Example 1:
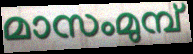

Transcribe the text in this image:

മാസംമുമ്പ്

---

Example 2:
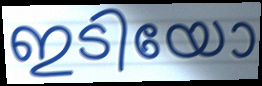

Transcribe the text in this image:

ഇടിയോ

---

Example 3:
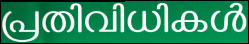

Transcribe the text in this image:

പ്രതിവിധികൾ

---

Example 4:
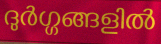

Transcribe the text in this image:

ദുർഗ്ഗങ്ങളിൽ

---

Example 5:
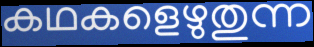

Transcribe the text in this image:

കഥകളെഴുതുന്ന